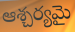
ఆశ్చర్యమై